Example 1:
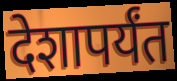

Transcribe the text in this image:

देशापर्यंत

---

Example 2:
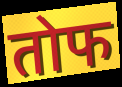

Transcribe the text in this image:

तोफ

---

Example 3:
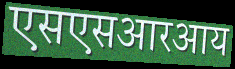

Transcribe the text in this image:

एसएसआरआय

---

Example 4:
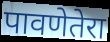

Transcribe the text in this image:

पावणेतेरा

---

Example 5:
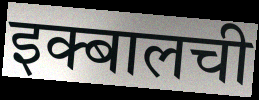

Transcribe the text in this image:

इक्बालची